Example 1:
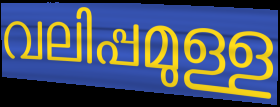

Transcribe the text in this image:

വലിപ്പമുള്ള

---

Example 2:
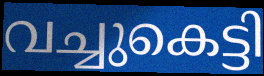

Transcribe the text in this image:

വച്ചുകെട്ടി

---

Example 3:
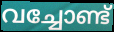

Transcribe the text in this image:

വച്ചോണ്ട്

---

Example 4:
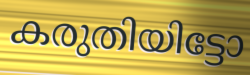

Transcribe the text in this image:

കരുതിയിട്ടോ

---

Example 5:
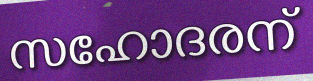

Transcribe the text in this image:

സഹോദരന്